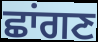
ਛਾਂਗਣ